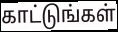
காட்டுங்கள்